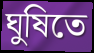
ঘুষিতে